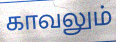
காவலும்